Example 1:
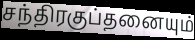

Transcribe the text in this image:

சந்திரகுப்தனையும்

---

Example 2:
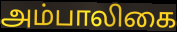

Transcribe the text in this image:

அம்பாலிகை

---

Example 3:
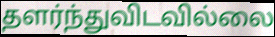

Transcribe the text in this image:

தளர்ந்துவிடவில்லை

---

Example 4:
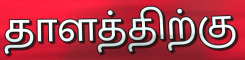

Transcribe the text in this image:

தாளத்திற்கு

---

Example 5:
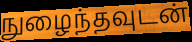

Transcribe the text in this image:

நுழைந்தவுடன்